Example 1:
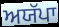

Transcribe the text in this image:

ਅਯੱਪਾ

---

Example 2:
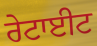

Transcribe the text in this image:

ਰੇਟਾਈਟ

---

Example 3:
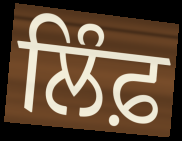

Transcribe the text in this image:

ਲਿੰਫ਼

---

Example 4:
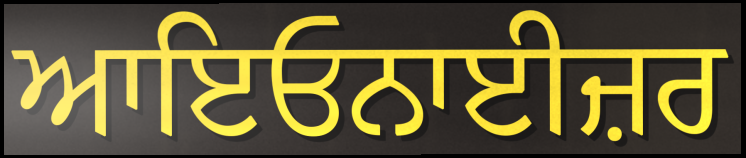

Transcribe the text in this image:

ਆਇਓਨਾਈਜ਼ਰ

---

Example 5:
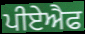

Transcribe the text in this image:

ਪੀਏਐਫ